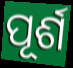
ପୂର୍ଶ